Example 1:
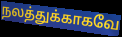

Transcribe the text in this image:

நலத்துக்காகவே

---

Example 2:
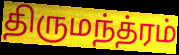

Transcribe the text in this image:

திருமந்த்ரம்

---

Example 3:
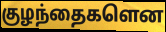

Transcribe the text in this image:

குழந்தைகளென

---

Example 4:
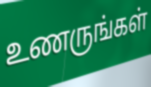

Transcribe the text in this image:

உணருங்கள்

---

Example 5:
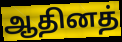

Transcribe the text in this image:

ஆதினத்